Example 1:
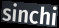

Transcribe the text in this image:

sinchi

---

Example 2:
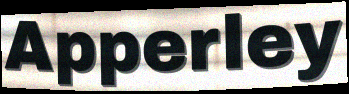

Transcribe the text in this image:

Apperley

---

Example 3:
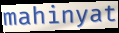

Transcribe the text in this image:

mahinyat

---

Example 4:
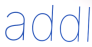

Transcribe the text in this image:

addl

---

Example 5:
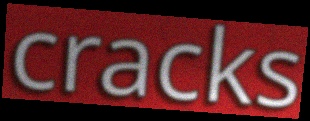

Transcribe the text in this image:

cracks